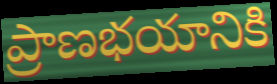
ప్రాణభయానికి